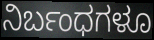
ನಿರ್ಬಂಧಗಳೂ